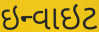
ઇન્વાઇટ